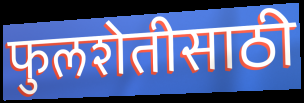
फुलशेतीसाठी